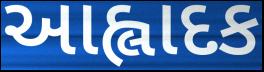
આહ્લાદક